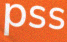
pss